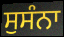
ਸੁਸੰਨਾ